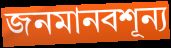
জনমানবশূন্য